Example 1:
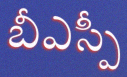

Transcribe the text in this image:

బీఎస్పీ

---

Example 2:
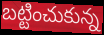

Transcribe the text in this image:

బట్టించుకున్న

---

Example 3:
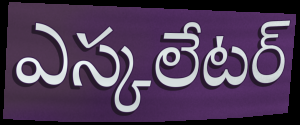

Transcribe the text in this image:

ఎస్కలేటర్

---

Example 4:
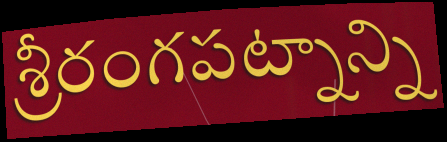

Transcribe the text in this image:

శ్రీరంగపట్నాన్ని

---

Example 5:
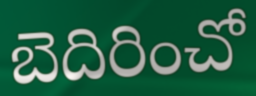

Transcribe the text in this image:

బెదిరించో